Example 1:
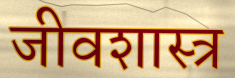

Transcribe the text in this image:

जीवशास्त्र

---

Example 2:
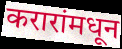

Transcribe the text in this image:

करारांमधून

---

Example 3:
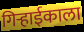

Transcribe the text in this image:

गिऱ्हाईकाला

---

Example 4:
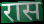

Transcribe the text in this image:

रास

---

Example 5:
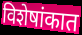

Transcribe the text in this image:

विशेषांकात